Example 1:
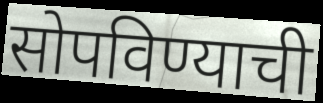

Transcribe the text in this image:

सोपविण्याची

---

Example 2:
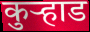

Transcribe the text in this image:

कुऱ्हाड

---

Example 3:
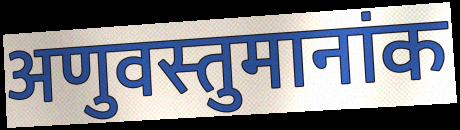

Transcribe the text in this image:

अणुवस्तुमानांक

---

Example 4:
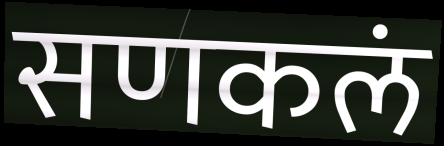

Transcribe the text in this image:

सणकलं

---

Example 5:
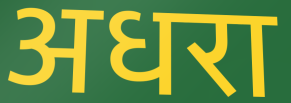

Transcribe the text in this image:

अधरा